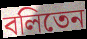
বলিতেন